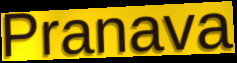
Pranava